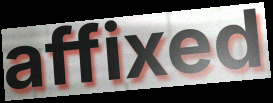
affixed